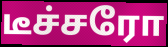
டீச்சரோ